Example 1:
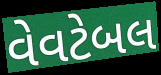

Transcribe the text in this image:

વેવટેબલ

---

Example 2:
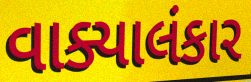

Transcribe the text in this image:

વાક્યાલંકાર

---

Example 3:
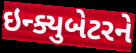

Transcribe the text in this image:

ઇન્ક્યુબેટરને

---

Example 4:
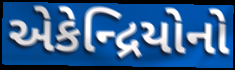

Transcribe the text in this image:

એકેન્દ્રિયોનો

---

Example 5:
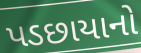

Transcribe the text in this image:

પડછાયાનો